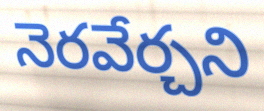
నెరవేర్చని